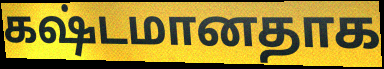
கஷ்டமானதாக